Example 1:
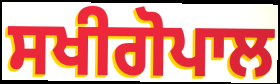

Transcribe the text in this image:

ਸਖੀਗੋਪਾਲ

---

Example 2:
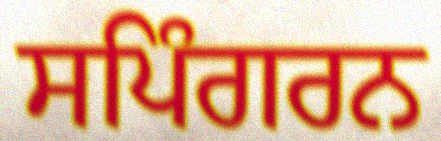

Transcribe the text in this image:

ਸਪਿੰਗਰਨ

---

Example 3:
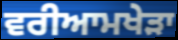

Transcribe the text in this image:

ਵਰੀਆਮਖੇੜਾ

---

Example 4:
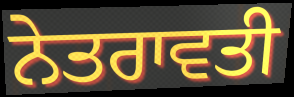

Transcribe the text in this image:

ਨੇਤਰਾਵਤੀ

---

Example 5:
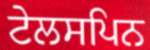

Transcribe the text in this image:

ਟੇਲਸਪਿਨ